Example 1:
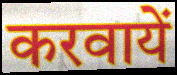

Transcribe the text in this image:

करवायें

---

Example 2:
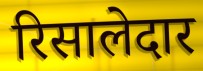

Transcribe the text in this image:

रिसालेदार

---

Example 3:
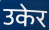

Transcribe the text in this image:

उकेर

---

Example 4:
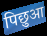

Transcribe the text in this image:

पिछुआ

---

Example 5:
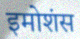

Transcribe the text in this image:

इमोशंस